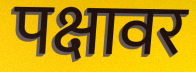
पक्षावर